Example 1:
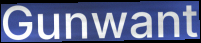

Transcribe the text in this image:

Gunwant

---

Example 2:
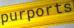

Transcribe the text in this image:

purports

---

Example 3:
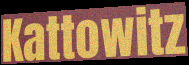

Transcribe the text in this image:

Kattowitz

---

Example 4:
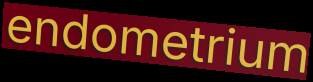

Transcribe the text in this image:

endometrium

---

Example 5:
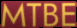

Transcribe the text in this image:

MTBE